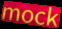
mock